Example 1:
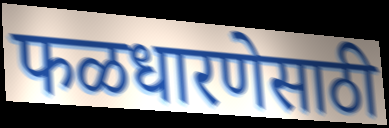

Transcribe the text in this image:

फळधारणेसाठी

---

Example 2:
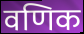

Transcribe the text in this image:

वणिक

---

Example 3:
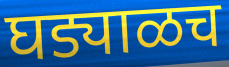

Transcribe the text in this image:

घड्याळच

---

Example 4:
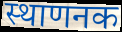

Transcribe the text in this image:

स्थाणनक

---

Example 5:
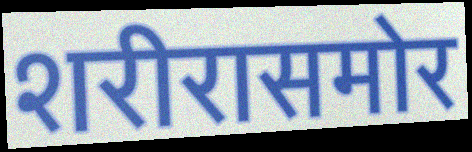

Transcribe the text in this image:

शरीरासमोर